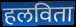
हलविता